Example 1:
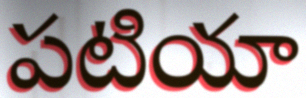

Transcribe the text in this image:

పటియా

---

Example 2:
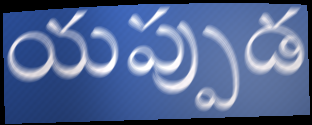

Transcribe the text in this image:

యప్పుడ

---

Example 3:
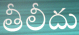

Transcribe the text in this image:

తీలీదు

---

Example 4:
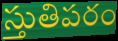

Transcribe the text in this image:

స్తుతిపరం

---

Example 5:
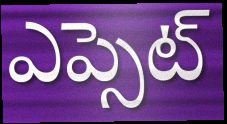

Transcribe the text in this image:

ఎప్సెట్